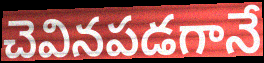
చెవినపడగానే